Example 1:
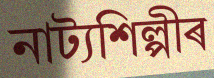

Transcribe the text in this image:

নাট্যশিল্পীৰ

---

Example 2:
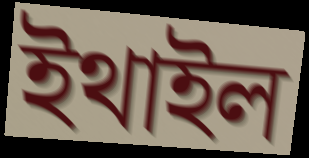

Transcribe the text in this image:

ইথাইল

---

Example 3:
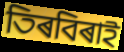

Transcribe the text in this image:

তিৰবিৰাই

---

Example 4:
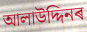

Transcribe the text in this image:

আলাউদ্দিনৰ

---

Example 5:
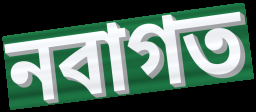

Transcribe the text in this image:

নবাগত